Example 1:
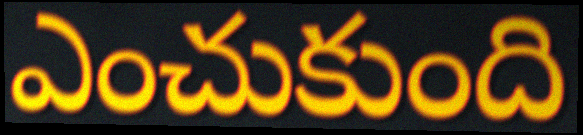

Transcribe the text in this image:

ఎంచుకుంది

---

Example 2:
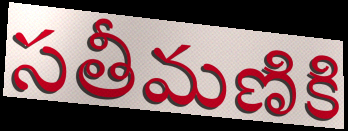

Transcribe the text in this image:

సతీమణికి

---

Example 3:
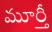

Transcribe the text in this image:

మూర్తీ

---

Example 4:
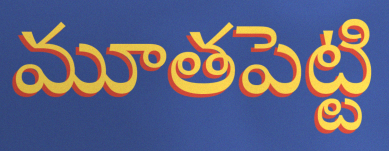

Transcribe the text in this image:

మూతపెట్టి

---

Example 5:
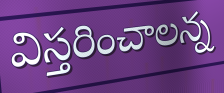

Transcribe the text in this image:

విస్తరించాలన్న